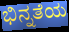
ಭಿನ್ನತೆಯ